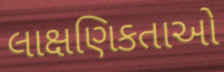
લાક્ષણિકતાઓ